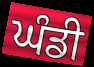
ਘੰਡੀ